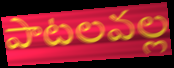
పాటలవల్ల